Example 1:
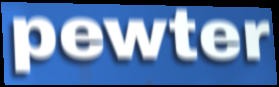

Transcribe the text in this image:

pewter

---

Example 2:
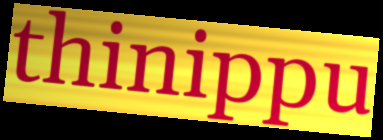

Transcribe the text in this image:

thinippu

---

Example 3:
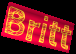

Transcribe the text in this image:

Britt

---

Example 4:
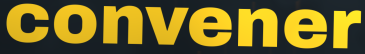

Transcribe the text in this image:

convener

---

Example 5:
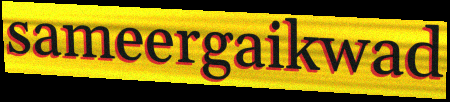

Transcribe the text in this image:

sameergaikwad